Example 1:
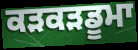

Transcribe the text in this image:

ਕੜਕੜਡੂਮਾ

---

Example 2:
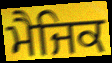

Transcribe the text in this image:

ਮੈਜਿਕ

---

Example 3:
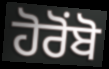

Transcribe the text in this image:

ਹੋਰੋਂਬੋ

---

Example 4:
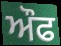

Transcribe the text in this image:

ਔਫ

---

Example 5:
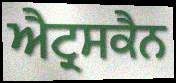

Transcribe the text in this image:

ਐਟ੍ਰਸਕੈਨ